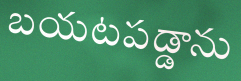
బయటపడ్డాను